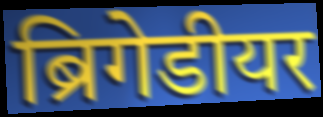
ब्रिगेडीयर